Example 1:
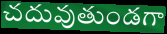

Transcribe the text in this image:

చదువుతుండగా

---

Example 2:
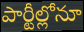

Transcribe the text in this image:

పార్టీల్లోనూ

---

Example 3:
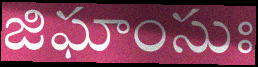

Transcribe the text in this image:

జిఘాంసుః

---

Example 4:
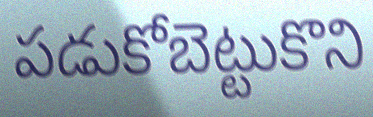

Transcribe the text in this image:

పడుకోబెట్టుకొని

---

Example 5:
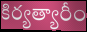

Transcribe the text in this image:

కిర్యత్యారీం